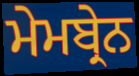
ਮੇਮਬ੍ਰੇਨ